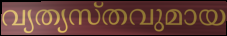
വ്യത്യസ്തവുമായ